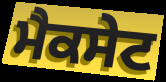
ਮੈਕਸੇਟ